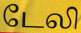
டேலி